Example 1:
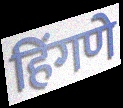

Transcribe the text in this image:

हिंगणे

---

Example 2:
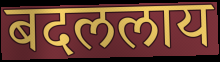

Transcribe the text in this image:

बदललाय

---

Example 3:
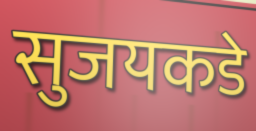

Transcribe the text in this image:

सुजयकडे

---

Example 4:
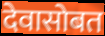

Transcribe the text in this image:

देवासोबत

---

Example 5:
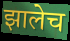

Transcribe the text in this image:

झालेच